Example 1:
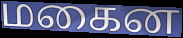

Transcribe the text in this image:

மகைன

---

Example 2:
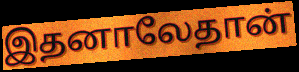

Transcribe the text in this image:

இதனாலேதான்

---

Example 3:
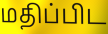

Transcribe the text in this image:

மதிப்பிட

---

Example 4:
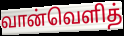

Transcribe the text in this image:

வான்வெளித்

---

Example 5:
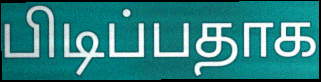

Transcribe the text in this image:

பிடிப்பதாக